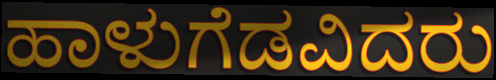
ಹಾಳುಗೆಡವಿದರು